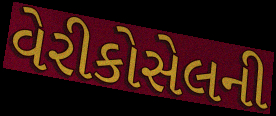
વેરીકોસેલની